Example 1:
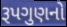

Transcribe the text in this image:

રૂપગુણનો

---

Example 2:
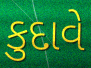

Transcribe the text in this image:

કુદાવે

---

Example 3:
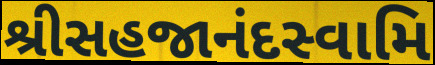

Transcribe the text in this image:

શ્રીસહજાનંદસ્વામિ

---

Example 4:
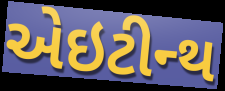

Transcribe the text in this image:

એઇટીન્થ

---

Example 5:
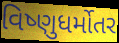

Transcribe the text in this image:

વિષ્ણુધર્મોતર